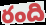
రంది